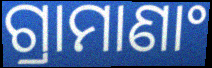
ଗ୍ରାମାଣାଂ